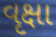
વૃક્ષા